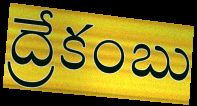
ద్రేకంబు